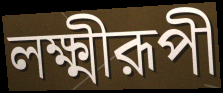
লক্ষ্মীরূপী